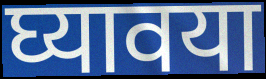
घ्यावया